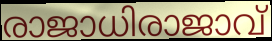
രാജാധിരാജാവ്